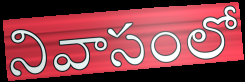
నివాసంలో